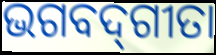
ଭଗବଦ୍‌ଗୀତା